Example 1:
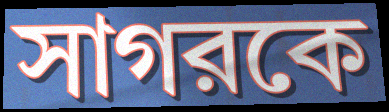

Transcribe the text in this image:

সাগরকে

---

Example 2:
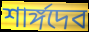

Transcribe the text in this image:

শার্ঙ্গদেব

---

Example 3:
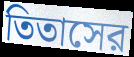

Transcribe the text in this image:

তিতাসের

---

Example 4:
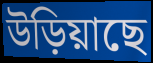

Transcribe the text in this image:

উড়িয়াছে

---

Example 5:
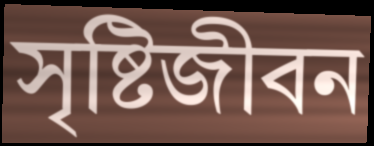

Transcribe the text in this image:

সৃষ্টিজীবন